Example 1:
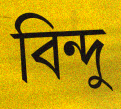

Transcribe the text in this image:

বিন্দু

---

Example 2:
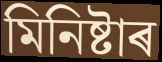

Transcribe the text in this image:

মিনিষ্টাৰ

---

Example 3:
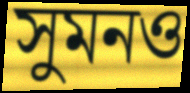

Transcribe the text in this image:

সুমনও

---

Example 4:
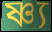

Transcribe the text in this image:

ষ্ণ্য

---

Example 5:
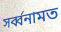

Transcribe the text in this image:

সৰ্ব্বনামত